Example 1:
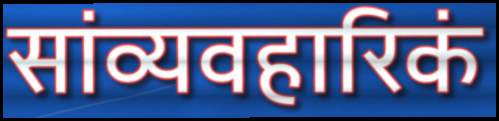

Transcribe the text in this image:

सांव्यवहारिकं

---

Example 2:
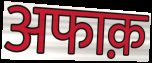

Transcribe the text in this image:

अफाक़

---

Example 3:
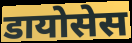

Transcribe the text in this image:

डायोसेस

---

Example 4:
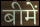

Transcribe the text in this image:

बीमें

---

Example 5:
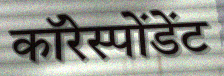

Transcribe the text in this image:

कॉरेस्पोंडेंट